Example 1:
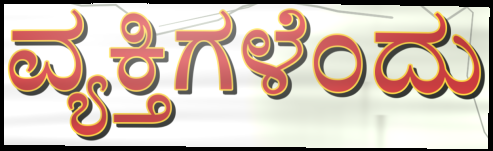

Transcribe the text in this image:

ವ್ಯಕ್ತಿಗಳೆಂದು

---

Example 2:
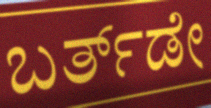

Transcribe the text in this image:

ಬರ್ತ್‌ಡೇ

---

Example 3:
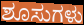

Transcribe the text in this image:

ಶೂಸುಗಳು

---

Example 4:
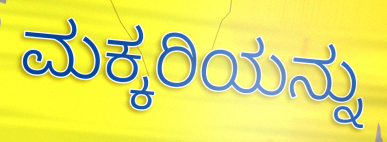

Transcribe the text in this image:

ಮಕ್ಕರಿಯನ್ನು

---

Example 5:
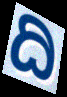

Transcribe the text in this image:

ದಿ